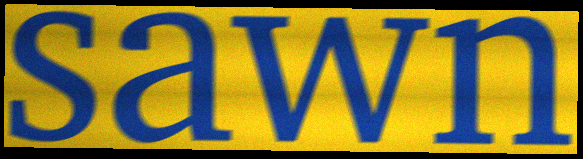
sawn